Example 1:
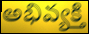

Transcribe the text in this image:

అభివ్యక్తి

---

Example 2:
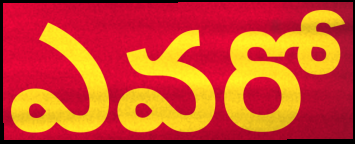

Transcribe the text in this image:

ఎవరో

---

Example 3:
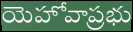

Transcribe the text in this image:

యెహోవాప్రభు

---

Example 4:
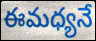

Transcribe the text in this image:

ఈమధ్యనే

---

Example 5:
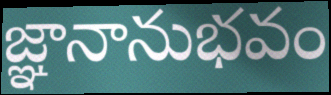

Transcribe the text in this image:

జ్ఞానానుభవం